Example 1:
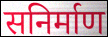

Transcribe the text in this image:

सनिर्माण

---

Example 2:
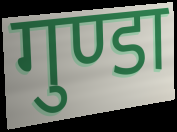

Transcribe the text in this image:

गुण्डा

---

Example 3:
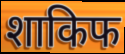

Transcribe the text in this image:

शाकिफ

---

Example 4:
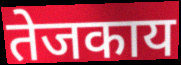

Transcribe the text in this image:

तेजकाय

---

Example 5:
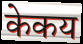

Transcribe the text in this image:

केकय